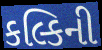
કલ્કિની